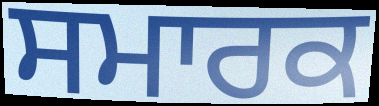
ਸਮਾਰਕ